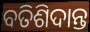
ବତିଶିଦାନ୍ତ